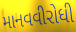
માનવવીરોધી